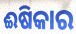
ଈଷିକାର